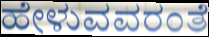
ಹೇಳುವವರಂತೆ